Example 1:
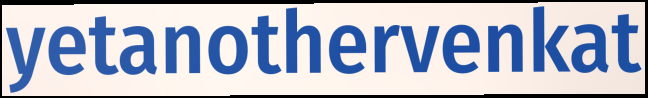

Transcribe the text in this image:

yetanothervenkat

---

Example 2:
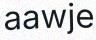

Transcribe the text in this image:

aawje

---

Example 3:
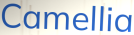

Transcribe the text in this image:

Camellia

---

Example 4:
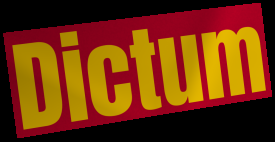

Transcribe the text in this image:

Dictum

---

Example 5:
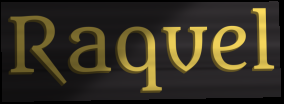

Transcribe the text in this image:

Raquel